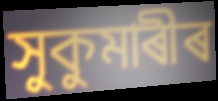
সুকুমাৰীৰ